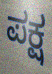
ಪಕ್ಷ